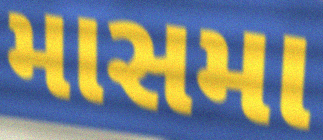
માસમા